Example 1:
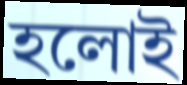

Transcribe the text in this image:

হলোই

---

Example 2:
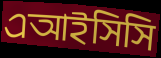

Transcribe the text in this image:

এআইসিসি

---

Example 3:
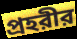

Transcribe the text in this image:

প্রহরীর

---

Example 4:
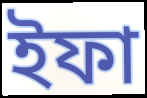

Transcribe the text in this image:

ইফা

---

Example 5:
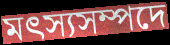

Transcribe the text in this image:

মৎস্যসম্পদে